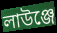
লাউঞ্জে